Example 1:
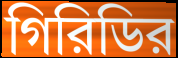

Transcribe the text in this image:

গিরিডির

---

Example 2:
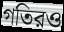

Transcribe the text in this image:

গতিরও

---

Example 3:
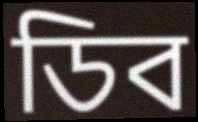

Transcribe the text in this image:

ডিব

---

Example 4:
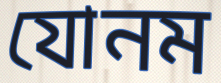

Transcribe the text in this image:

যোনম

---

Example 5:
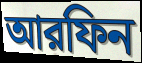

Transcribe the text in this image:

আরফিন